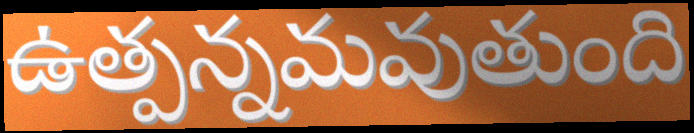
ఉత్పన్నమవుతుంది